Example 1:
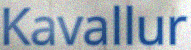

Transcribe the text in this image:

Kavallur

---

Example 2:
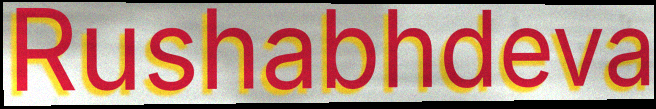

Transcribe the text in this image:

Rushabhdeva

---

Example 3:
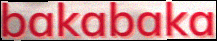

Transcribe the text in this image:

bakabaka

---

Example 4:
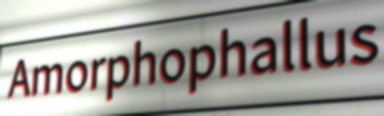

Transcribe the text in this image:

Amorphophallus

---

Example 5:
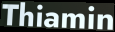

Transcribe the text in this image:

Thiamin